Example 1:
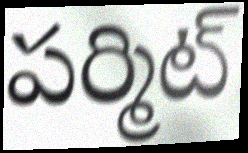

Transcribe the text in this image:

పర్మిట్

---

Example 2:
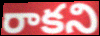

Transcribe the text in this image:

రాకని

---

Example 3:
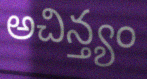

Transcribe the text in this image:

అచిన్త్యం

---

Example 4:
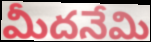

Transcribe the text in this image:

మీదనేమి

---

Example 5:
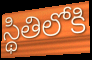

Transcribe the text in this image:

స్థితిలోకి